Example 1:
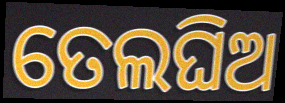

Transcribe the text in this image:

ତେଲଘିଅ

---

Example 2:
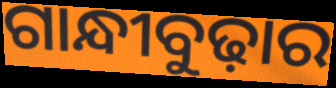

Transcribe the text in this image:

ଗାନ୍ଧୀବୁଢ଼ାର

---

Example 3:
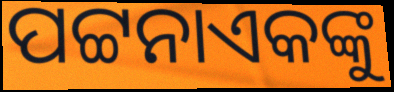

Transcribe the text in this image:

ପଟ୍ଟନାଏକଙ୍କୁ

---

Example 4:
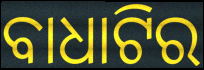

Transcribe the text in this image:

ବାଧାଟିର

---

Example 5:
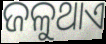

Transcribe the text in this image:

ଜଳୁଥାଏ